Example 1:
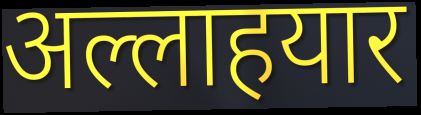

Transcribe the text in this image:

अल्लाहयार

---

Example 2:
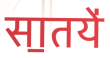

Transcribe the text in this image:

सा॒तये॑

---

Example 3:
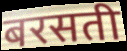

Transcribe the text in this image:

बरसती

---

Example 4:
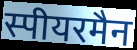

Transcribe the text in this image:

स्पीयरमैन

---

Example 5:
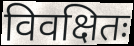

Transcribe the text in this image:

विवक्षितः